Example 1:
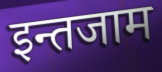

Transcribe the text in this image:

इन्तजाम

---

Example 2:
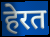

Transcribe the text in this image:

हेरत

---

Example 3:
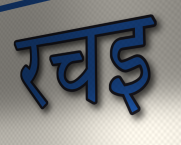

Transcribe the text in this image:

रचइ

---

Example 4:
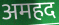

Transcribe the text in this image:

अमहद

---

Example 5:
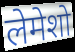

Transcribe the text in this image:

लेमेशो